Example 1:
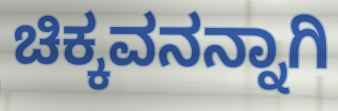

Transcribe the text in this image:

ಚಿಕ್ಕವನನ್ನಾಗಿ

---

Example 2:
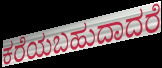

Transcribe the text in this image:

ಕರೆಯಬಹುದಾದರೆ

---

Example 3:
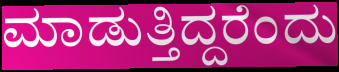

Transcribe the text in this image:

ಮಾಡುತ್ತಿದ್ದರೆಂದು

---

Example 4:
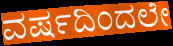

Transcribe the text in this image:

ವರ್ಷದಿಂದಲೇ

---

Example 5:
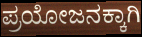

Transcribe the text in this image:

ಪ್ರಯೋಜನಕ್ಕಾಗಿ